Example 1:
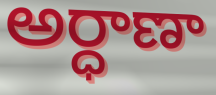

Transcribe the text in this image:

అర్ధాణా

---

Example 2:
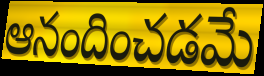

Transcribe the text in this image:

ఆనందించడమే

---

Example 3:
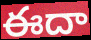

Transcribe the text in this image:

ఈదా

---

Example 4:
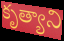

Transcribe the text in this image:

కృత్యాని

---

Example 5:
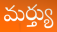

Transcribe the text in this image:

మర్త్యు